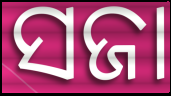
ସଜା